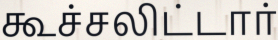
கூச்சலிட்டார்